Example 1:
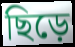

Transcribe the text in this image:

ছিড়ে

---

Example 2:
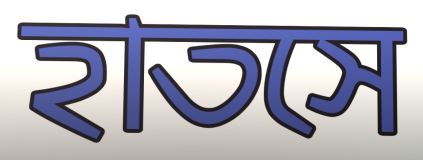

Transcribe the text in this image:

হাতসে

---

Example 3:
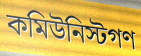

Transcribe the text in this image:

কমিউনিস্টগণ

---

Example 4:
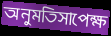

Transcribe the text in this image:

অনুমতিসাপেক্ষ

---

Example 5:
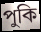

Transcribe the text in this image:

পুকি